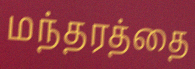
மந்தரத்தை